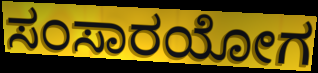
ಸಂಸಾರಯೋಗ